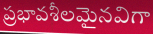
ప్రభావశీలమైనవిగా